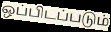
ஒப்பிடப்படும்